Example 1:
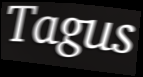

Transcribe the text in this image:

Tagus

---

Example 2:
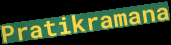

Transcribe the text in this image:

Pratikramana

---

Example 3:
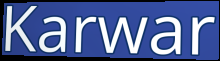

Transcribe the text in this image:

Karwar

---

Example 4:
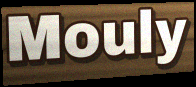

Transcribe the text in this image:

Mouly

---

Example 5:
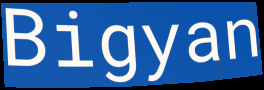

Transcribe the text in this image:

Bigyan